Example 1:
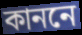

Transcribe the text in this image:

কাননে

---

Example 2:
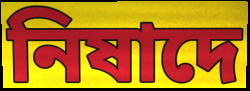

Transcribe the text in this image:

নিষাদে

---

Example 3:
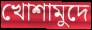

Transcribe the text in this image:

খোশামুদে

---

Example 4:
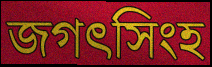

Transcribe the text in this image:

জগৎসিংহ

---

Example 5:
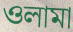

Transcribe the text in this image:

ওলামা